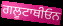
ਗਲੂਟਾਥੀਓਨ